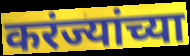
करंज्यांच्या